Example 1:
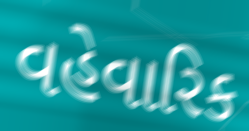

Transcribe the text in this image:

વહેવારિક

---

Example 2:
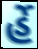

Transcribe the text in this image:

ર્હે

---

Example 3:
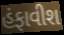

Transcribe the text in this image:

હંફાવીશ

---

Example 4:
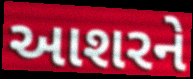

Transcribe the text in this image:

આશરને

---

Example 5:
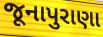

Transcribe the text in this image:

જૂનાપુરાણા